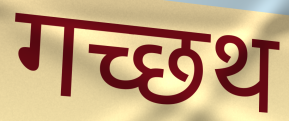
गच्छथ